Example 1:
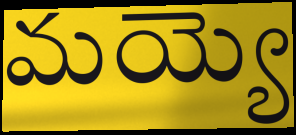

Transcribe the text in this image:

మయ్యె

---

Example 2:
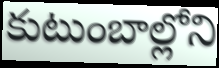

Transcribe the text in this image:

కుటుంబాల్లోని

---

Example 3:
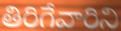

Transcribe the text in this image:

తిరిగేవారిని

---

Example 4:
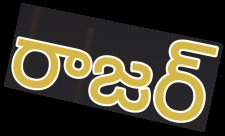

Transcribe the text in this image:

రాజర్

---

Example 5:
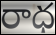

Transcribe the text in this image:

రాధ